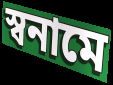
স্বনামে